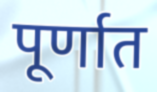
पूर्णात